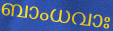
ബാംധവാഃ